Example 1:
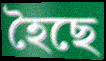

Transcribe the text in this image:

হৈছে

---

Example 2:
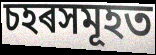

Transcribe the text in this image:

চহৰসমূহত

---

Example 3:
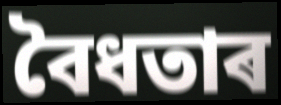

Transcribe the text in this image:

বৈধতাৰ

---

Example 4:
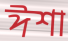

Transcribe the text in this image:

ঈশা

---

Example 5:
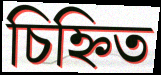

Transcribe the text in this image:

চিহ্নিত